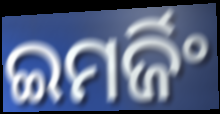
ଇମର୍ଜିଂ